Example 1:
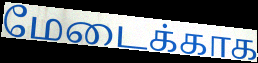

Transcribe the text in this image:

மேடைக்காக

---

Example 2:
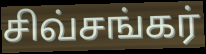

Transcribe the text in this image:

சிவ்சங்கர்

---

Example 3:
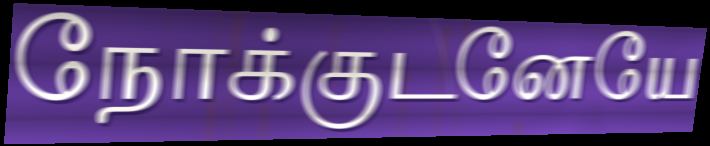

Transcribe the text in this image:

நோக்குடனேயே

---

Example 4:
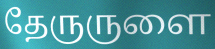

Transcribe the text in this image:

தேருருளை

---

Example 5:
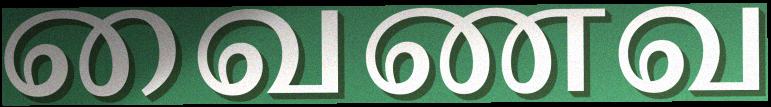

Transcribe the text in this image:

வைணவ